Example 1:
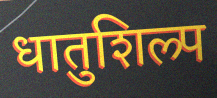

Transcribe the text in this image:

धातुशिल्प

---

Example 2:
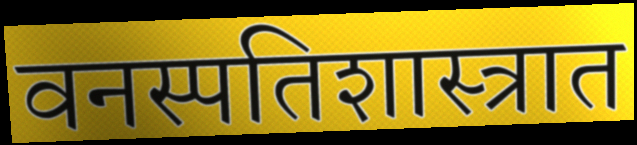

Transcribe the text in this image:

वनस्पतिशास्त्रात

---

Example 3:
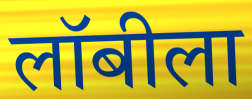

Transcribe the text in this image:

लॉबीला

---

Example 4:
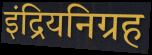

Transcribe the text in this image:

इंद्रियनिग्रह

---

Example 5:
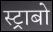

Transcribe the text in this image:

स्ट्राबो